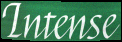
Intense